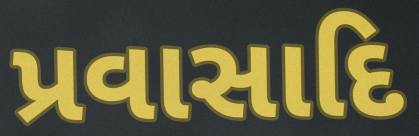
પ્રવાસાદિ